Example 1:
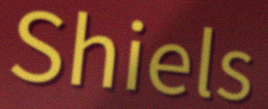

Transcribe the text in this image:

Shiels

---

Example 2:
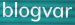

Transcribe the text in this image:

blogvar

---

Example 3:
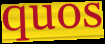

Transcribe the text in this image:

quos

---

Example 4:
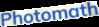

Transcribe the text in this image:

Photomath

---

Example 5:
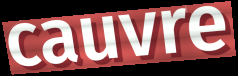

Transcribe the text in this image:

cauvre